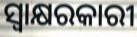
ସ୍ୱାକ୍ଷରକାରୀ